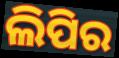
ଲିପିର